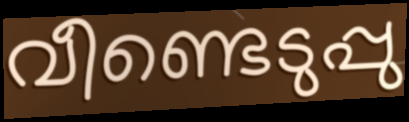
വീണ്ടെടുപ്പു